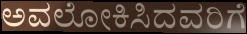
ಅವಲೋಕಿಸಿದವರಿಗೆ